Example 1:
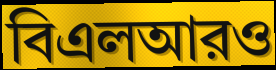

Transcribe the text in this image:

বিএলআরও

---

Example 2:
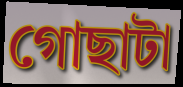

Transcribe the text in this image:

গোছাটা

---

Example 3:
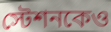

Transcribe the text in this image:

স্টেশনকেও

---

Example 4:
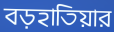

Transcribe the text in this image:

বড়হাতিয়ার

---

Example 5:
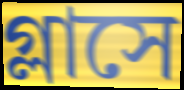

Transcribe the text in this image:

গ্লাসে